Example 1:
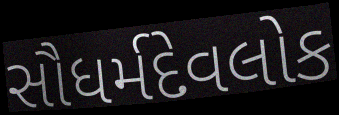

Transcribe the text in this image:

સૌધર્મદેવલોક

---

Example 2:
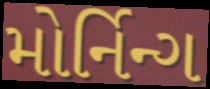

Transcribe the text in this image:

મોર્નિન્ગ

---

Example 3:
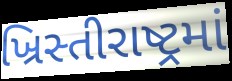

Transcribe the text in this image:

ખ્રિસ્તીરાષ્ટ્રમાં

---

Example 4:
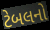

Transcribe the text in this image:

ટેબલનો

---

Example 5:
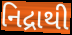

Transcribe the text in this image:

નિદ્રાથી